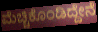
ಮೆಚ್ಚಿಕೊಂಡಿದ್ದೇನೆ